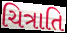
ચિત્રાતિ